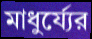
মাধুর্য্যের